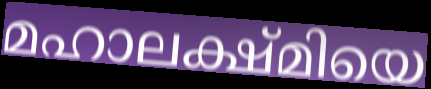
മഹാലക്ഷ്മിയെ